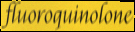
fluoroquinolone